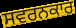
ਸਵਰਨਕਾਰ